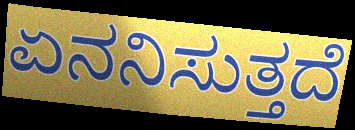
ಏನನಿಸುತ್ತದೆ